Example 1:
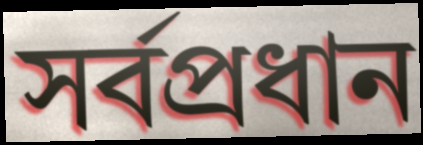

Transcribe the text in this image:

সৰ্বপ্ৰধান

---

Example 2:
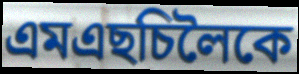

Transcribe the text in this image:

এমএছচিলৈকে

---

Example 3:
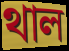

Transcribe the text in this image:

থাল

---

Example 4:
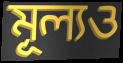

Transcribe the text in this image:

মূল্যও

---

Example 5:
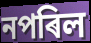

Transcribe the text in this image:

নপৰিল